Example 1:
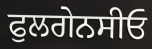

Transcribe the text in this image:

ਫੁਲਗੇਨਸੀਓ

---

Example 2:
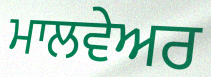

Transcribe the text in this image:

ਮਾਲਵੇਅਰ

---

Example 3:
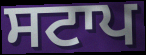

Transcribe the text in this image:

ਸਟਾਪ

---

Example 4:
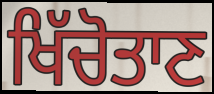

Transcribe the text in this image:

ਖਿੱਚੋਤਾਣ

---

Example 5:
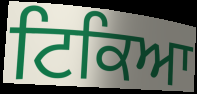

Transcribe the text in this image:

ਟਿਕਿਆ